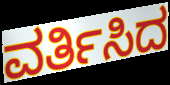
ವರ್ತಿಸಿದ